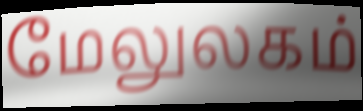
மேலுலகம்